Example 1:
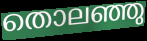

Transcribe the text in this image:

തൊലഞ്ഞു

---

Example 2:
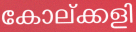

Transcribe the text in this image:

കോല്ക്കളി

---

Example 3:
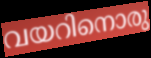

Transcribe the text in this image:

വയറിനൊരു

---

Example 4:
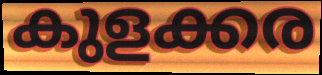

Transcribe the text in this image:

കുളക്കര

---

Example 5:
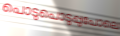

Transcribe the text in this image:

പൊടുപൊടുപ്പുപോലെ